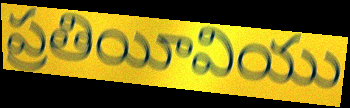
ప్రతియీవియు